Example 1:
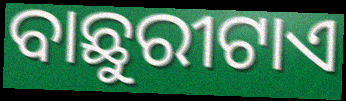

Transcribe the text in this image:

ବାଛୁରୀଟାଏ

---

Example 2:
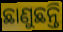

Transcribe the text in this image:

ଛାଣୁଛନ୍ତି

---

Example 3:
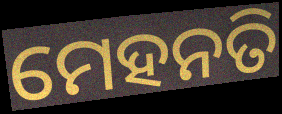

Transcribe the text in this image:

ମେହନତି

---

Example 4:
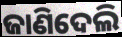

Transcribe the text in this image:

ଜାଣିଦେଲି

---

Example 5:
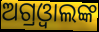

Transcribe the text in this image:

ଅଗ୍ରଓ୍ବାଲଙ୍କ